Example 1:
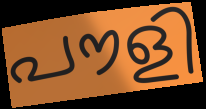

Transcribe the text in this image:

പൗളി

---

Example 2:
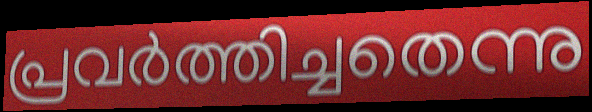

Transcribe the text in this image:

പ്രവർത്തിച്ചതെന്നു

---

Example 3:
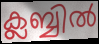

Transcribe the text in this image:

ക്ലബ്ബിൽ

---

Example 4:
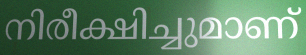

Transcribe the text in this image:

നിരീക്ഷിച്ചുമാണ്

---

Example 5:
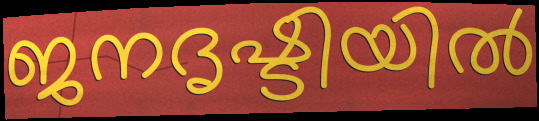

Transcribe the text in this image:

ജനദൃഷ്ടിയിൽ